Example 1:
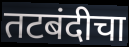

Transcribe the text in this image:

तटबंदीचा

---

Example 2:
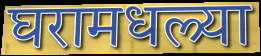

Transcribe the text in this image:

घरामधल्या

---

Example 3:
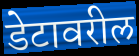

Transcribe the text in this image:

डेटावरील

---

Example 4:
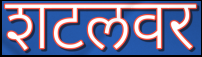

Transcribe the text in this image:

शटलवर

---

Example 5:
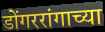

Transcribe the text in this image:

डोंगररांगाच्या